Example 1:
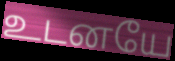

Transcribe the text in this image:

உடனயே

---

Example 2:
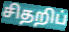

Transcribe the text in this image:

சிதறிப்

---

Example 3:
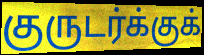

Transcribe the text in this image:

குருடர்க்குக்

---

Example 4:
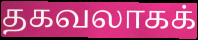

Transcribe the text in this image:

தகவலாகக்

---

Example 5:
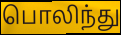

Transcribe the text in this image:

பொலிந்து